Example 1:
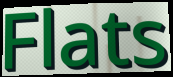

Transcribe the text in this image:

Flats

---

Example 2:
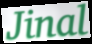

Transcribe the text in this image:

Jinal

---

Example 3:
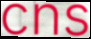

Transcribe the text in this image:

cns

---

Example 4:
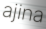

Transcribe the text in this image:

ajina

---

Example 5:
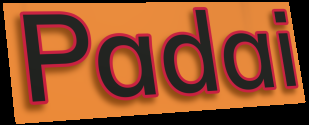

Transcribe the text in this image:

Padai